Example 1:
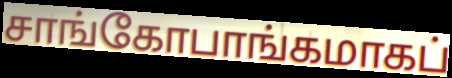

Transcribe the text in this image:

சாங்கோபாங்கமாகப்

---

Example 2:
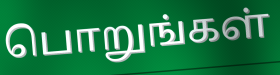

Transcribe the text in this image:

பொறுங்கள்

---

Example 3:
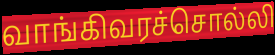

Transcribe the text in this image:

வாங்கிவரச்சொல்லி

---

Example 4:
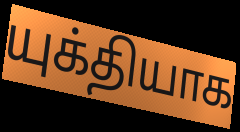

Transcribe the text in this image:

யுக்தியாக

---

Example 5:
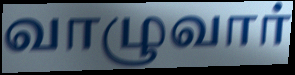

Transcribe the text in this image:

வாழுவார்